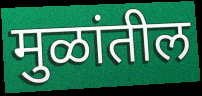
मुळांतील